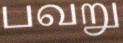
பவறு